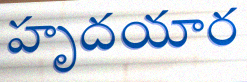
హృదయార